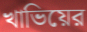
খাভিয়ের